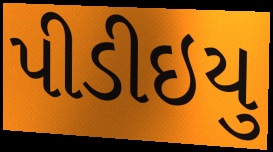
પીડીઇયુ